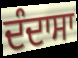
ਦੰਦਾਸਾ